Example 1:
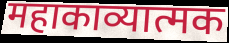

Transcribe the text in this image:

महाकाव्यात्मक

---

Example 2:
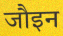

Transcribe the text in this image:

जौइन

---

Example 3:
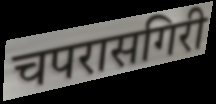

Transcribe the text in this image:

चपरासगिरी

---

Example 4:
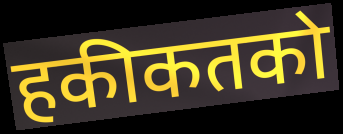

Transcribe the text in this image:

हकीकतको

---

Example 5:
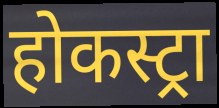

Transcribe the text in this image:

होकस्ट्रा